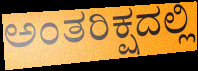
ಅಂತರಿಕ್ಷದಲ್ಲಿ